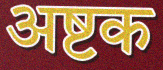
अष्टक